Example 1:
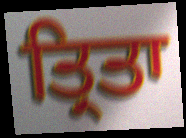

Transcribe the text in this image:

ਤ੍ਰਿਤਾ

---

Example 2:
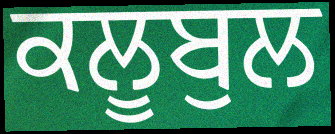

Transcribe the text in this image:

ਕਲੂਬੁਲ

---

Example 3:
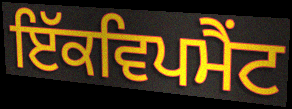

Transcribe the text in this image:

ਇੱਕਵਿਪਮੈਂਟ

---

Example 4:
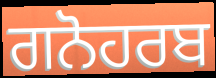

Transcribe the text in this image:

ਗਨੋਹਰਬ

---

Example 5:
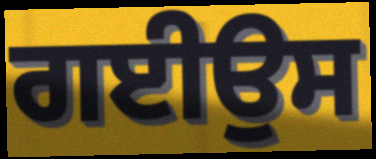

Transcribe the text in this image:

ਗਈਉਸ